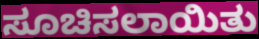
ಸೂಚಿಸಲಾಯಿತು